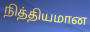
நித்தியமான